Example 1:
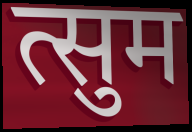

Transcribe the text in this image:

त्सुम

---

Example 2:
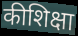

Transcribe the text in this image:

कीशिक्षा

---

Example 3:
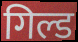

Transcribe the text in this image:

गिल्ड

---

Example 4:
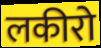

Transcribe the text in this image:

लकीरो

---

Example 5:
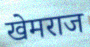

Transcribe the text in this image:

खेमराज